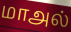
மாஅல்